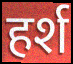
हर्श